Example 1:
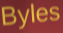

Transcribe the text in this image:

Byles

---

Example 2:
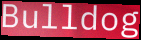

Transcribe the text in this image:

Bulldog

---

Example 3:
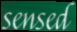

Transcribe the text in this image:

sensed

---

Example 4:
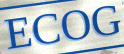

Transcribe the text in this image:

ECOG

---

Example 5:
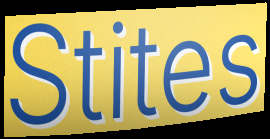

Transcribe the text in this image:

Stites